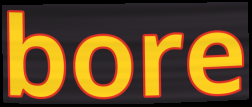
bore